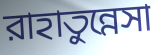
রাহাতুন্নেসা